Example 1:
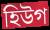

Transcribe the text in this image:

হিউগ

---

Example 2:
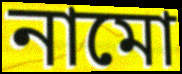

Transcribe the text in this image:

নামো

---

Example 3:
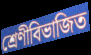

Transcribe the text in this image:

শ্রেণীবিভাজিত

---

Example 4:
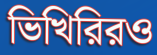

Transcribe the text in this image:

ভিখিরিরও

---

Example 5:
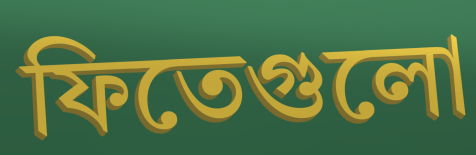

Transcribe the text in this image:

ফিতেগুলো